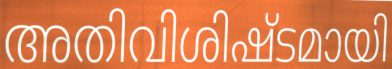
അതിവിശിഷ്ടമായി